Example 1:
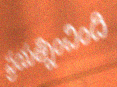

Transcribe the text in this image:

ప్రయత్నించింది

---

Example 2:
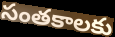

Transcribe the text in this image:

సంతకాలకు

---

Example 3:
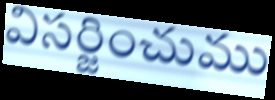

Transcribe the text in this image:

విసర్జించుము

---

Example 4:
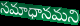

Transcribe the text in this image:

సమాధానమని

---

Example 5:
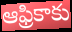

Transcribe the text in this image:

ఆఫ్రికాకు